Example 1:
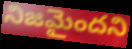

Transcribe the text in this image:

నిజమైందని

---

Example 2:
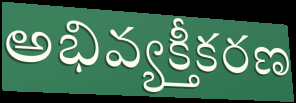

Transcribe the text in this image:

అభివ్యక్తీకరణ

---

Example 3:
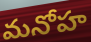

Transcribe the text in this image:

మనోహ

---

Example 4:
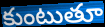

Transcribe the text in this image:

కుంటుతూ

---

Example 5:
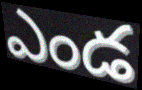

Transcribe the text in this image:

ఎండ